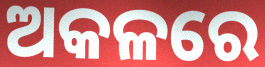
ଅକଳରେ